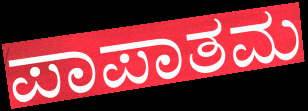
ಪಾಪಾತಮ